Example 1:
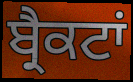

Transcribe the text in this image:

ਬ੍ਰੈਕਟਾਂ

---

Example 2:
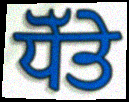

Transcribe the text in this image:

ਧੋੱਤੇ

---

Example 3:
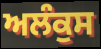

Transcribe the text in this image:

ਅਲੰਕੁਸ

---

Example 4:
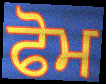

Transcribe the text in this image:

ਫੋਮ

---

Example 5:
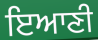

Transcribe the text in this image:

ਇਆਣੀ